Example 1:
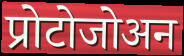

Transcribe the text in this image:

प्रोटोजोअन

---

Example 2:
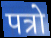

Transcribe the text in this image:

पत्रो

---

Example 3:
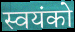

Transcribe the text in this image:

स्वयंको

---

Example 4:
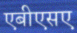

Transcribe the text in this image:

एबीएसए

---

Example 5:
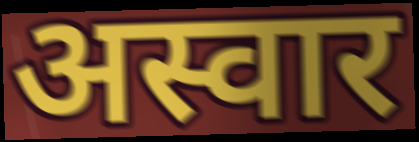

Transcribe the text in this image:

अस्वार